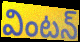
వింటన్